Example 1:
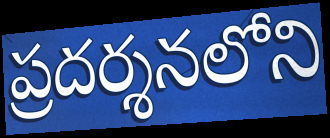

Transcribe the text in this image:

ప్రదర్శనలోని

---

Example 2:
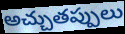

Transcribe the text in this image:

అచ్చుతప్పులు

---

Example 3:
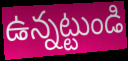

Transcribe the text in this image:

ఉన్నట్టుండి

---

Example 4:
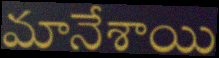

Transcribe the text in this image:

మానేశాయి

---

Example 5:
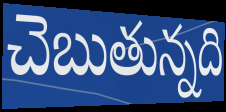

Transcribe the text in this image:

చెబుతున్నది